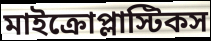
মাইক্রোপ্লাস্টিকস